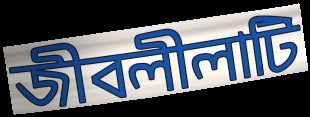
জীবলীলাটি